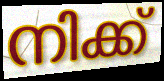
നിക്ക്